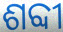
ଶବ୍ଦୀ